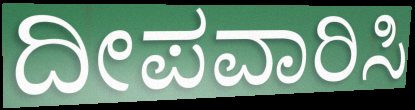
ದೀಪವಾರಿಸಿ